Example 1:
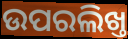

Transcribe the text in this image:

ଉପରଲିଖ୍ତ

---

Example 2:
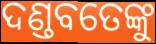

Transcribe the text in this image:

ଦଣ୍ଡବତେଙ୍କୁ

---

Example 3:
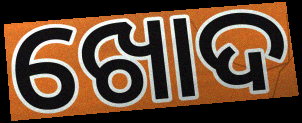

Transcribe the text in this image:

ଖୋଦ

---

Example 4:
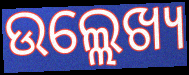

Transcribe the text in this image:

ଉଲ୍ଲେଖ୍ୟ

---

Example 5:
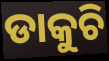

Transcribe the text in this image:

ଡାକୁଚି